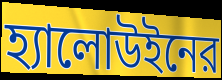
হ্যালোউইনের